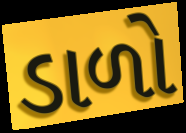
ડાળો